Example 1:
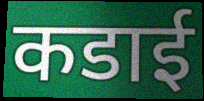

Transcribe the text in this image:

कडाई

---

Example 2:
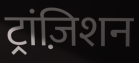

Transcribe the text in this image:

ट्रांज़िशन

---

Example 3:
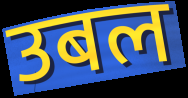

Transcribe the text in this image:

उबल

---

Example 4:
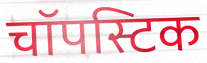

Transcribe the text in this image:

चॉपस्टिक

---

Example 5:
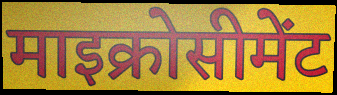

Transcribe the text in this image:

माइक्रोसीमेंट